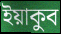
ইয়াকুব